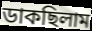
ডাকছিলাম